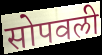
सोपवली